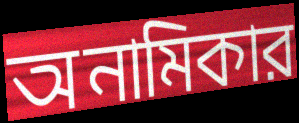
অনামিকার